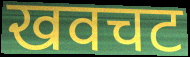
खवचट